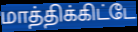
மாத்திக்கிட்டே